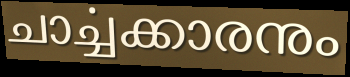
ചാൎച്ചക്കാരനും